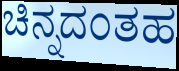
ಚಿನ್ನದಂತಹ